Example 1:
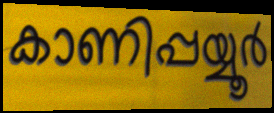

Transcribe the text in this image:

കാണിപ്പയ്യൂർ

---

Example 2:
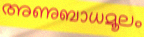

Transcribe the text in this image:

അണുബാധമൂലം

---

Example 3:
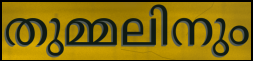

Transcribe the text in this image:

തുമ്മലിനും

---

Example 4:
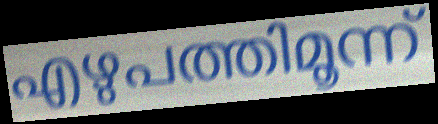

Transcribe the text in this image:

എഴുപത്തിമൂന്ന്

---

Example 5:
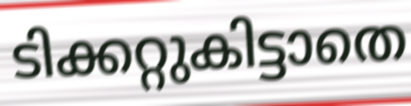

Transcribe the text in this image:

ടിക്കറ്റുകിട്ടാതെ